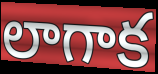
లాగాక